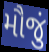
મૌજું